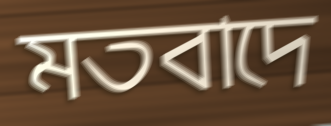
মতবাদে